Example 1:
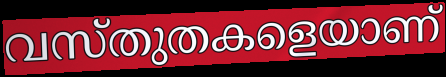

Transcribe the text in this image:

വസ്തുതകളെയാണ്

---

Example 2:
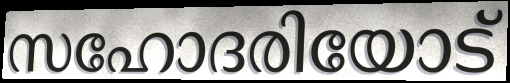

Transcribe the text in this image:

സഹോദരിയോട്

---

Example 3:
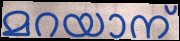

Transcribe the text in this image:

മറയാന്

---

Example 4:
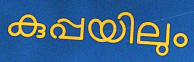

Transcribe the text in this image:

കുപ്പയിലും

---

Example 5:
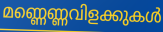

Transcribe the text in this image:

മണ്ണെണ്ണവിളക്കുകൾ